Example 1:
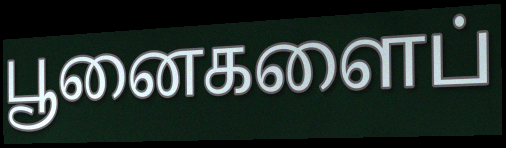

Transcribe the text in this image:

பூனைகளைப்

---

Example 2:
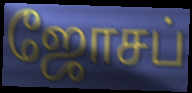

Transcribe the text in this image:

ஜோசப்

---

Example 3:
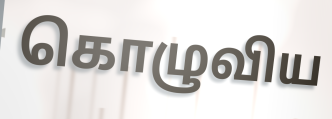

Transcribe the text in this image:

கொழுவிய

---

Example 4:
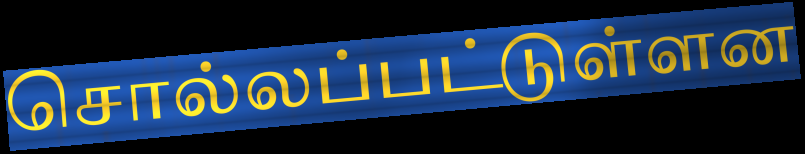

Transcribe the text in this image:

சொல்லப்பட்டுள்ளன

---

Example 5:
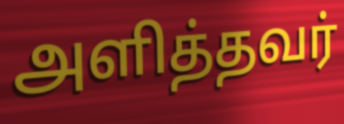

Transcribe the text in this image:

அளித்தவர்